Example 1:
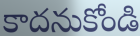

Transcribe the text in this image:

కాదనుకోండి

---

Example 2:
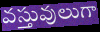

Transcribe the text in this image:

వస్తువులుగా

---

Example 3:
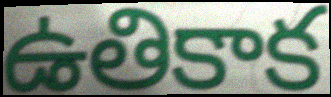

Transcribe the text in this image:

ఉతికాక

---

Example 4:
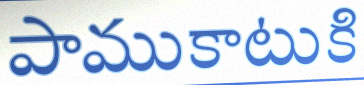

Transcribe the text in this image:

పాముకాటుకి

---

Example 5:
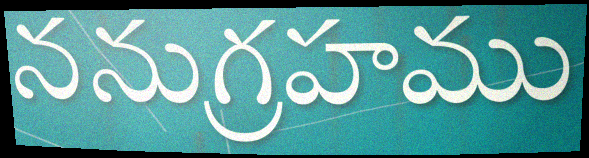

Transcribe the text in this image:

ననుగ్రహము